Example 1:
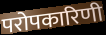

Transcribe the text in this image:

परोपकारिणी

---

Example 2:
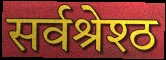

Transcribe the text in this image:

सर्वश्रेश्ठ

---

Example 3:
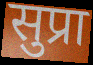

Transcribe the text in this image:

सुप्रा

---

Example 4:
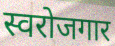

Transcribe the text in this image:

स्वरोजगार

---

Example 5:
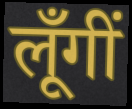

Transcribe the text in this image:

लूँगीं